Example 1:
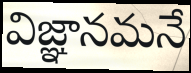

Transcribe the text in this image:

విజ్ఞానమనే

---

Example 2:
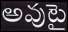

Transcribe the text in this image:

అవుటై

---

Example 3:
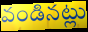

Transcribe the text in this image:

వండినట్లు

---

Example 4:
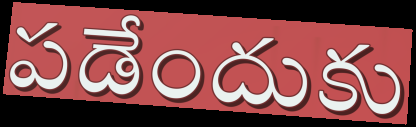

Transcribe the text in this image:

పడేందుకు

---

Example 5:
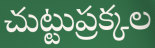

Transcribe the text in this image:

చుట్టుప్రక్కల